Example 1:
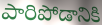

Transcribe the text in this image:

పారిపోడానికి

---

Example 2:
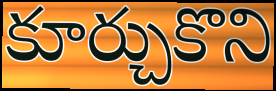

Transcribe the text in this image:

కూర్చుకొని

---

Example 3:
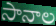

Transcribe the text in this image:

సానాల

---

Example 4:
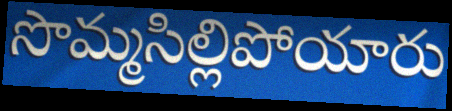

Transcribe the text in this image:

సొమ్మసిల్లిపోయారు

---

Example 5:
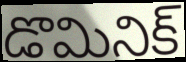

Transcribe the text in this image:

డొమినిక్